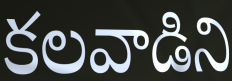
కలవాడిని